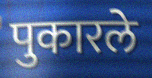
पुकारले